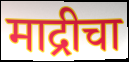
माद्रीचा